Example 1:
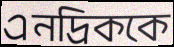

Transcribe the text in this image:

এনদ্রিককে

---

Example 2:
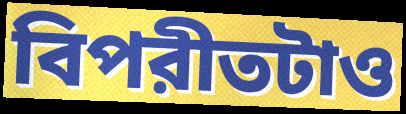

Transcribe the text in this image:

বিপরীতটাও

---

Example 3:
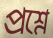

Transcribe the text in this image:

প্রশ্নে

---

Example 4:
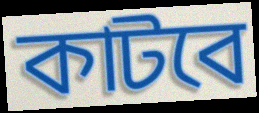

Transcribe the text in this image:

কাটবে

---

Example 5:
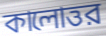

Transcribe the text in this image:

কালোত্তর